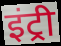
इंट्री